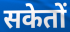
सकेतों